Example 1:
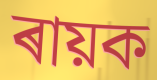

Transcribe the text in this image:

ৰায়ক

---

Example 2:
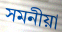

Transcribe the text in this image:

সমনীয়া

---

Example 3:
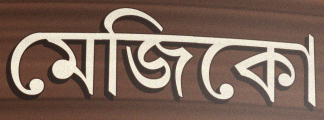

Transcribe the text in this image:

মেজিকো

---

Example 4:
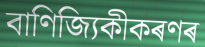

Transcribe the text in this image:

বাণিজ্যিকীকৰণৰ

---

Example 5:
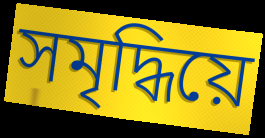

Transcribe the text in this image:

সমৃদ্ধিয়ে